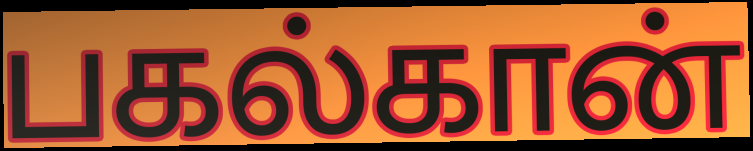
பகல்கான்